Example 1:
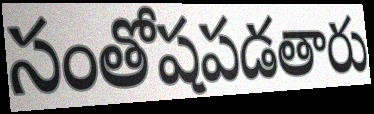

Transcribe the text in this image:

సంతోషపడతారు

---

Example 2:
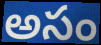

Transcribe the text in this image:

అసం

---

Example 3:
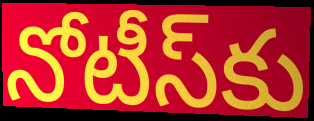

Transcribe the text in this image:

నోటీస్‌కు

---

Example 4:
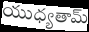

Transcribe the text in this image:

యుధ్యతామ్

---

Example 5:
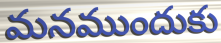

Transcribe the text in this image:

మనముందుకు